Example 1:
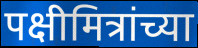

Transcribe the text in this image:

पक्षीमित्रांच्या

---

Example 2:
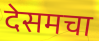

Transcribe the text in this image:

देसमचा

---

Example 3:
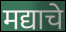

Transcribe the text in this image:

मद्याचे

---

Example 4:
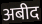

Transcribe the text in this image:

अबीद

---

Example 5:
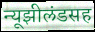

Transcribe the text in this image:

न्यूझीलंडसह